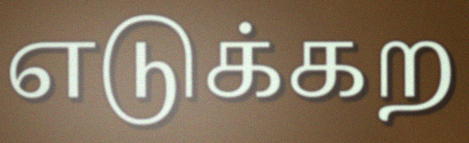
எடுக்கற